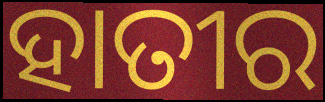
ହାତୀର